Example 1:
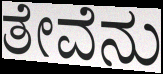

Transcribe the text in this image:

ತೇವೆನು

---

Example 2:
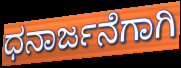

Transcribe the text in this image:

ಧನಾರ್ಜನೆಗಾಗಿ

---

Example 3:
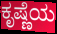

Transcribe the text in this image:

ಕೃಷ್ಣೆಯ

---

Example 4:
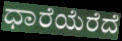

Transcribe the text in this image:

ಧಾರೆಯೆರೆದೆ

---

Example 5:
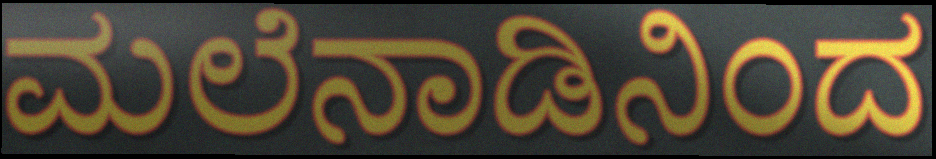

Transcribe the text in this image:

ಮಲೆನಾಡಿನಿಂದ